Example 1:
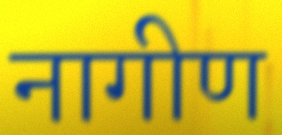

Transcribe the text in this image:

नागीण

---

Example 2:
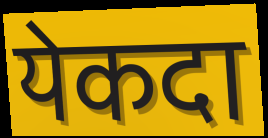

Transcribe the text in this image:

येकदा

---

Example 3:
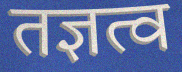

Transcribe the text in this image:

तज्ञत्व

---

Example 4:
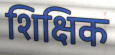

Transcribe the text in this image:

शिक्षिक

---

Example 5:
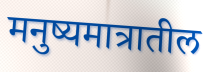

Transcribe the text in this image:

मनुष्यमात्रातील